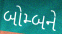
બોમ્બને